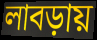
লাবড়ায়